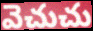
వెచుచు